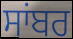
ਸਾਂਬਰ